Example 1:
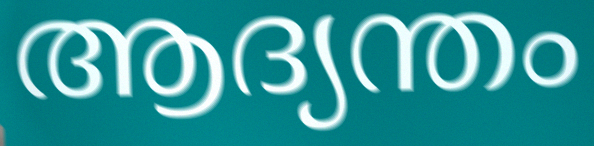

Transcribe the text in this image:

ആദ്യന്തം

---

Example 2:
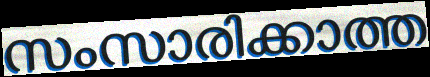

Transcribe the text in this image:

സംസാരിക്കാത്ത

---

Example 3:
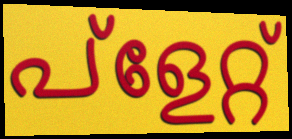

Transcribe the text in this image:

പ്ളേറ്റ്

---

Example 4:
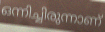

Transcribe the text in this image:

ഒന്നിച്ചിരുന്നാണ്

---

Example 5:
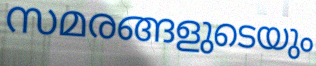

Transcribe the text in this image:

സമരങ്ങളുടെയും